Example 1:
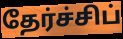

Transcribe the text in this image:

தேர்ச்சிப்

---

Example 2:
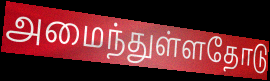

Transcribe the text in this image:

அமைந்துள்ளதோடு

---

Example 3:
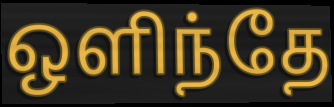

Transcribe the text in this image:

ஒளிந்தே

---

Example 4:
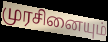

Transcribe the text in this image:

முரசினையும்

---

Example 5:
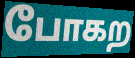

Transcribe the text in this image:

போகற